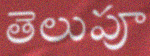
తెలుపూ